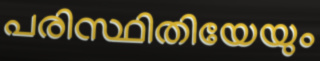
പരിസ്ഥിതിയേയും